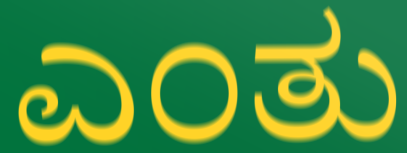
ಎಂತು